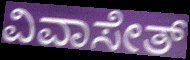
ವಿವಾಸೇತ್